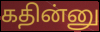
கதின்னு